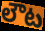
లౌట